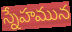
స్నేహమున